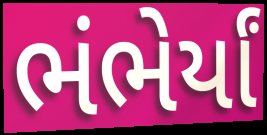
ભંભેર્યાં